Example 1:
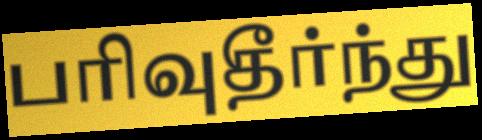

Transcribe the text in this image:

பரிவுதீர்ந்து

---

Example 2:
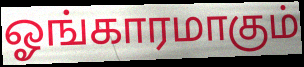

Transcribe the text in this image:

ஓங்காரமாகும்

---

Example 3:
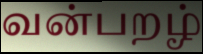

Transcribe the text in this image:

வன்பறழ்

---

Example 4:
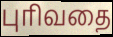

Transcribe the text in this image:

புரிவதை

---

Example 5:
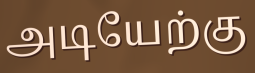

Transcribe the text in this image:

அடியேற்கு